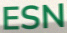
ESN